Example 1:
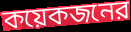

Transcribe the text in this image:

কয়েকজনের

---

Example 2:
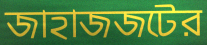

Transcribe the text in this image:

জাহাজজটের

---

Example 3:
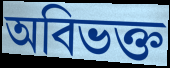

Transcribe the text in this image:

অবিভক্ত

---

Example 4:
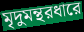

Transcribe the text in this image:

মৃদুমন্থরধারে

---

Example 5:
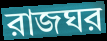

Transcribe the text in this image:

রাজঘর